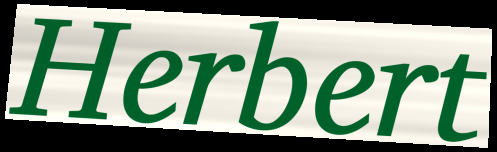
Herbert